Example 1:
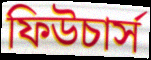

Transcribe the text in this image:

ফিউচার্স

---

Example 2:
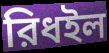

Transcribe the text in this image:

রিধইল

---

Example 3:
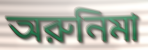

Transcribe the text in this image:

অরুনিমা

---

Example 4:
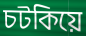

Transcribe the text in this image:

চটকিয়ে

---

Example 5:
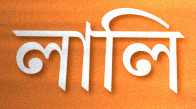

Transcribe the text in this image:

লালি